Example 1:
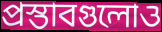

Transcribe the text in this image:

প্রস্তাবগুলোও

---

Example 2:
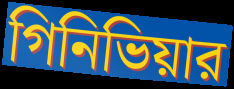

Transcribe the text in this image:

গিনিভিয়ার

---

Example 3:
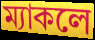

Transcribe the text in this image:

ম্যাকলে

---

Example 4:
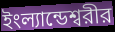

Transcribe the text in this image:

ইংল্যান্ডেশ্বরীর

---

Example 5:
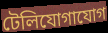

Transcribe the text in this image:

টেলিযোগাযোগ